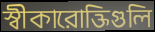
স্বীকারোক্তিগুলি